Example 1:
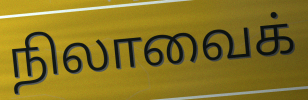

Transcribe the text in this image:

நிலாவைக்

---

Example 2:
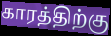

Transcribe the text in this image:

காரத்திற்கு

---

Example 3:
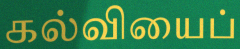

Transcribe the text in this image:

கல்வியைப்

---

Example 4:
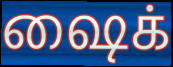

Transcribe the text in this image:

ஷைக்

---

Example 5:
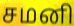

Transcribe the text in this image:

சமனி